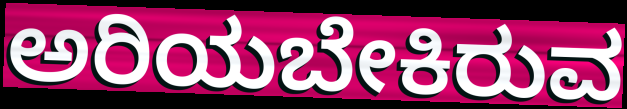
ಅರಿಯಬೇಕಿರುವ